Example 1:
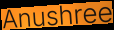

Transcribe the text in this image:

Anushree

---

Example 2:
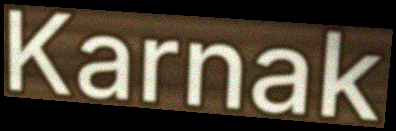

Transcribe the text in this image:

Karnak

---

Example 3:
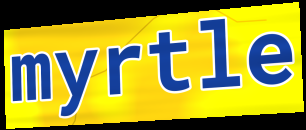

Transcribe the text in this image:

myrtle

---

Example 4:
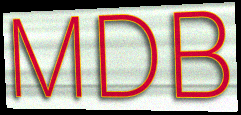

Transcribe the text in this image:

MDB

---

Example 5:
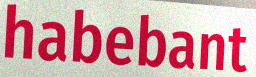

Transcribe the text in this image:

habebant